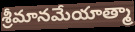
శ్రీమానమేయాత్మా